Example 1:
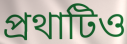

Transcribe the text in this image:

প্রথাটিও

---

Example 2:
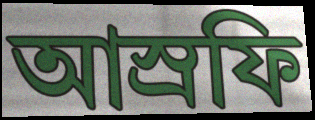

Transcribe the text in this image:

আস্রফি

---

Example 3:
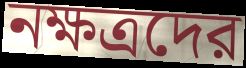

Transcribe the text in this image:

নক্ষত্রদের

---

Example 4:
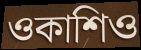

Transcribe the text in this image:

ওকাশিও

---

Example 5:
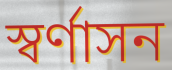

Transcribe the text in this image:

স্বর্ণাসন